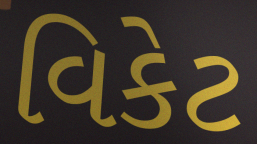
વિકેટ